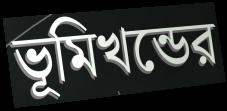
ভূমিখন্ডের